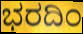
ಭರದಿಂ